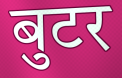
बुटर